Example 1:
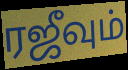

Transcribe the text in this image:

ரஜீவும்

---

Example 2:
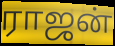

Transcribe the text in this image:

ராஜன்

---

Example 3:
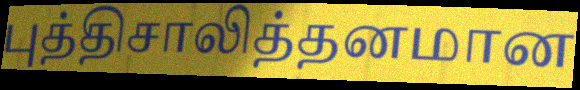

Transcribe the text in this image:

புத்திசாலித்தனமான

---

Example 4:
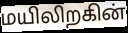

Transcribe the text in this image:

மயிலிறகின்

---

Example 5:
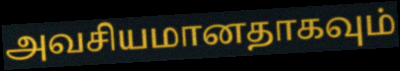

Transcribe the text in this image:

அவசியமானதாகவும்